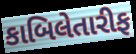
કાબિલેતારીફ